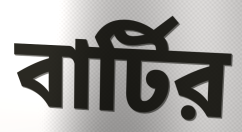
বার্টির